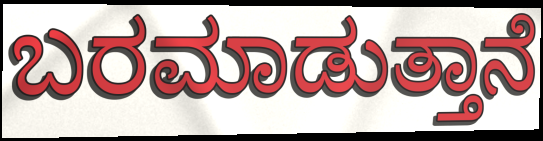
ಬರಮಾಡುತ್ತಾನೆ